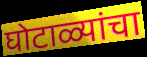
घोटाळ्यांचा